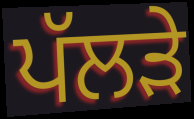
ਪੱਲੜੇ